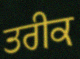
ਤਰੀਕ